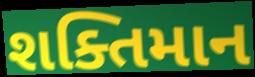
શક્તિમાન